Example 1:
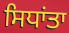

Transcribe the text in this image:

ਸਿਧਾਂਤਾ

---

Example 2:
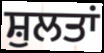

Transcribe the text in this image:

ਸ਼ੁਲਤਾਂ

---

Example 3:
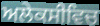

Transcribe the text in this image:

ਅਲੇਕਸੀਵਿਚ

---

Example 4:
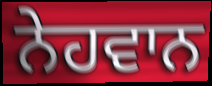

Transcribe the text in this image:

ਨੇਹਵਾਨ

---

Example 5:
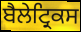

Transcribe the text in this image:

ਬੈਲੇਟ੍ਰਿਕਸ